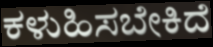
ಕಳುಹಿಸಬೇಕಿದೆ